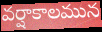
వర్షాకాలమున